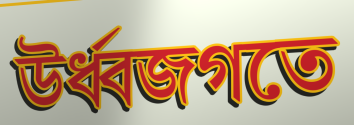
উর্ধ্বজগতে